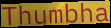
Thumbha